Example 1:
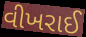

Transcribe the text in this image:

વીખરાઈ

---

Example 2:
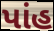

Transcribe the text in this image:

પાંહ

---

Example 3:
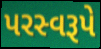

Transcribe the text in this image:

પરસ્વરૂપે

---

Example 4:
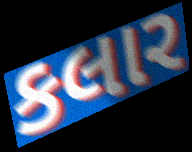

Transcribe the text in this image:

કલાર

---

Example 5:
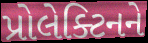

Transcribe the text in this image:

પ્રોલેક્ટિનને